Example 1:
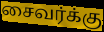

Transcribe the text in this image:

சைவர்க்கு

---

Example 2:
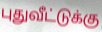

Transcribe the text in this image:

புதுவீட்டுக்கு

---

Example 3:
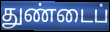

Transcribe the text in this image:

துண்டைப்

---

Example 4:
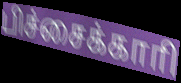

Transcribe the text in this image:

பிச்சைக்காரி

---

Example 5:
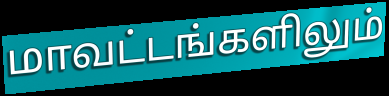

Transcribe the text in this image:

மாவட்டங்களிலும்